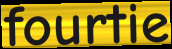
fourtie